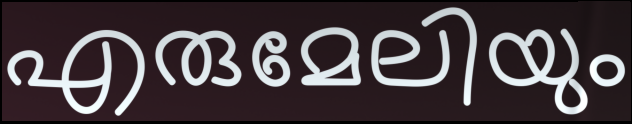
എരുമേലിയും